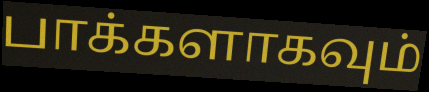
பாக்களாகவும்